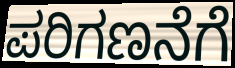
ಪರಿಗಣನೆಗೆ